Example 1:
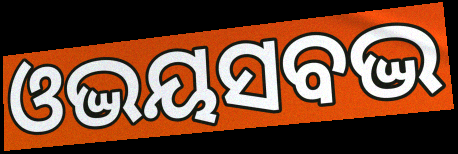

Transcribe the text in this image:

ଓଦ୍ଭୟସବଦ୍ଭ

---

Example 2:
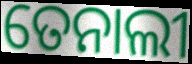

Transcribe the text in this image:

ତେନାଲୀ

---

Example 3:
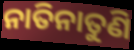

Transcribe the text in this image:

ନାତିନାତୁଣି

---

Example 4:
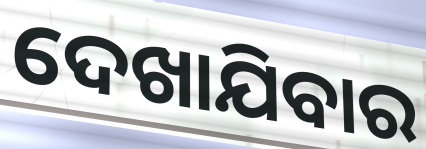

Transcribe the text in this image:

ଦେଖାଯିବାର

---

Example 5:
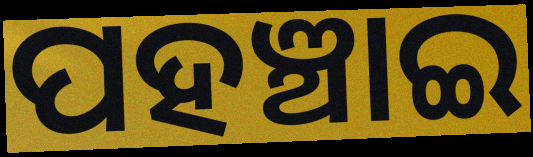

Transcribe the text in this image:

ପହଞ୍ଚାଇ